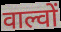
वाल्वों